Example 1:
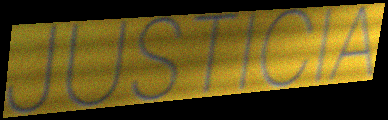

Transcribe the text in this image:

JUSTICIA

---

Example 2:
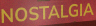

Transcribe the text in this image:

NOSTALGIA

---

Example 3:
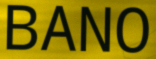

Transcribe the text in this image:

BANO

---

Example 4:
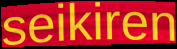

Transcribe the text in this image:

seikiren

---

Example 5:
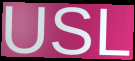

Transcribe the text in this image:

USL